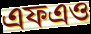
এফএও